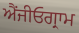
ਐਂਜੀਓਗ੍ਰਾਮ